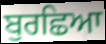
ਬੁਰਛਿਆ